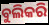
ବୁଲିକରି